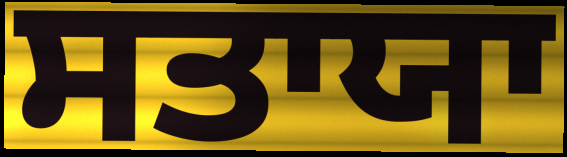
ਸਤਾਯਾ